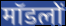
मॉडलों